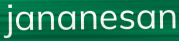
jananesan